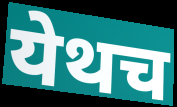
येथच